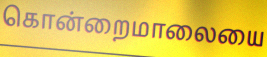
கொன்றைமாலையை